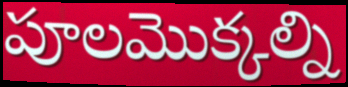
పూలమొక్కల్ని